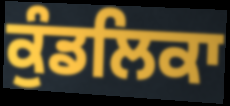
ਕੁੰਡਲਿਕਾ